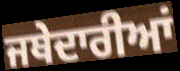
ਜਥੇਦਾਰੀਆਂ